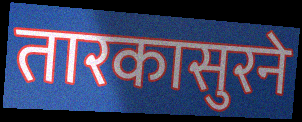
तारकासुरने